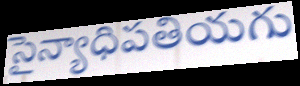
సైన్యాధిపతియగు